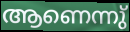
ആണെന്നു്